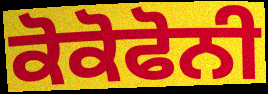
ਕੋਕੋਫੋਨੀ